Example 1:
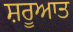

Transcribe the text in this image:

ਸ਼ਰੂਆਤ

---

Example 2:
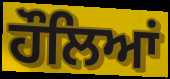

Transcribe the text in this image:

ਹੌਲਿਆਂ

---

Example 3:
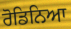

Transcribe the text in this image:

ਰੋਡਿਨਿਆ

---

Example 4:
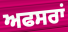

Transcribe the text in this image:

ਅਫਸਰਾਂ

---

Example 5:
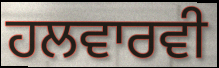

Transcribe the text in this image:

ਹਲਵਾਰਵੀ